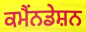
ਕਮੈਂਨਡੇਸ਼ਨ